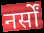
नर्सों